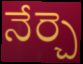
నేర్చె